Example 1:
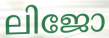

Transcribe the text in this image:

ലിജോ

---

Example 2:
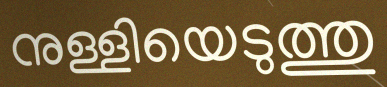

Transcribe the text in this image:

നുള്ളിയെടുത്തു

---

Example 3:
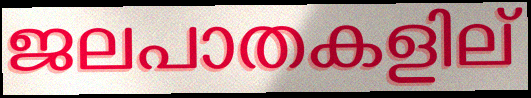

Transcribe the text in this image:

ജലപാതകളില്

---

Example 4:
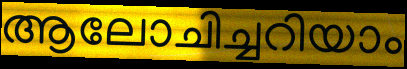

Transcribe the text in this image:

ആലോചിച്ചറിയാം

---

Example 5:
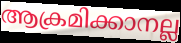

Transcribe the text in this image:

ആക്രമിക്കാനല്ല